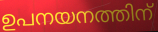
ഉപനയനത്തിന്